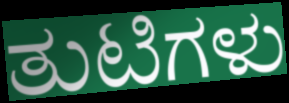
ತುಟಿಗಳು